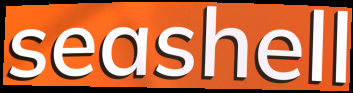
seashell